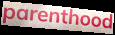
parenthood